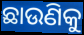
ଛାଉଣିକୁ